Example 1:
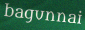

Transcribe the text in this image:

bagunnai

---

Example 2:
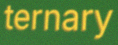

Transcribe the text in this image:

ternary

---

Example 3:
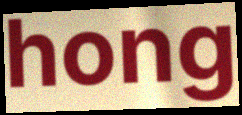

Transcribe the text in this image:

hong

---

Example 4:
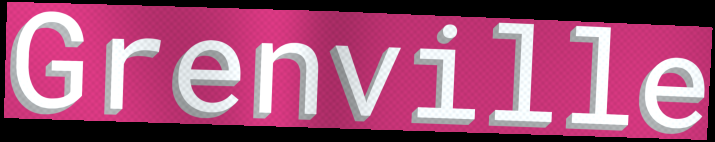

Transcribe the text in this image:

Grenville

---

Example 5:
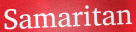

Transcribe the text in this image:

Samaritan